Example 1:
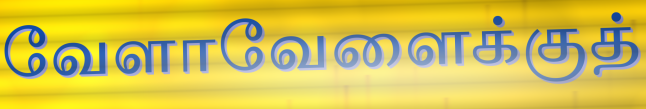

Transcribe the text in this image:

வேளாவேளைக்குத்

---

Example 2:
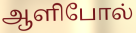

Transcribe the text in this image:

ஆளிபோல்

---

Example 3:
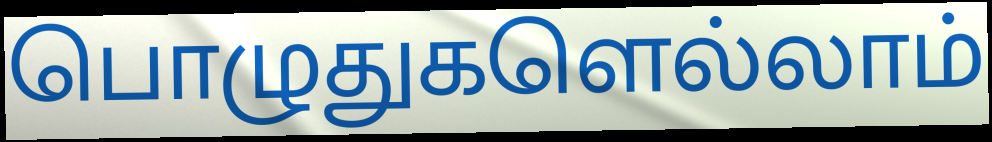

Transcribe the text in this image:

பொழுதுகளெல்லாம்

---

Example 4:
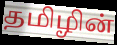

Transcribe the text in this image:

தமிழின்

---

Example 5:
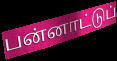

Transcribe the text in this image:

பன்னாட்டுப்